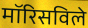
मॉरिसविले